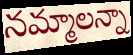
నమ్మాలన్నా